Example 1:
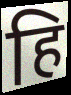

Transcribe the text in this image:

हि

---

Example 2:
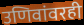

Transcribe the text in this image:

उणिवांवरही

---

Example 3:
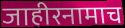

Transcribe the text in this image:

जाहीरनामाच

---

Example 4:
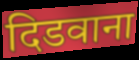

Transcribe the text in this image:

दिडवाना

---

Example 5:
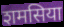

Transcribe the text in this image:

शमसिया